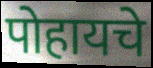
पोहायचे